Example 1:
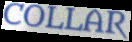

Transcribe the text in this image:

COLLAR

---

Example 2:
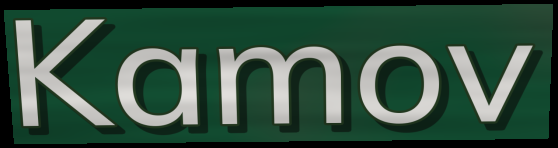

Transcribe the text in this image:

Kamov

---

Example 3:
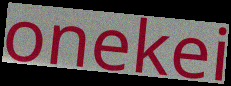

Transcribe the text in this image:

onekei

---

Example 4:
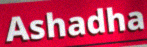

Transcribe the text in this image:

Ashadha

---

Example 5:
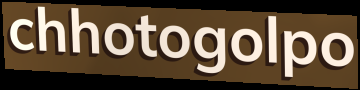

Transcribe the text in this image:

chhotogolpo